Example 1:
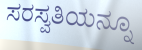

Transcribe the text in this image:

ಸರಸ್ವತಿಯನ್ನೂ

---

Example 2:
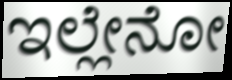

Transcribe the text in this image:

ಇಲ್ಲೇನೋ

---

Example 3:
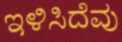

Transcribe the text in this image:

ಇಳಿಸಿದೆವು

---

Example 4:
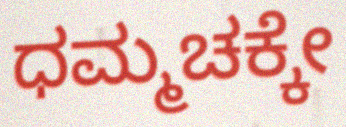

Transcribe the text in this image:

ಧಮ್ಮಚಕ್ಕೇ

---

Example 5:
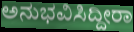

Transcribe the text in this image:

ಅನುಭವಿಸಿದ್ದೀರಾ